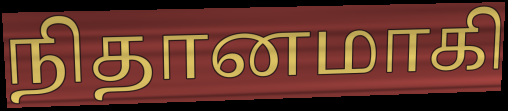
நிதானமாகி